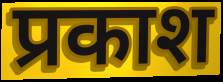
प्रकाश